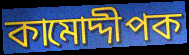
কামোদ্দীপক